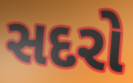
સદરો